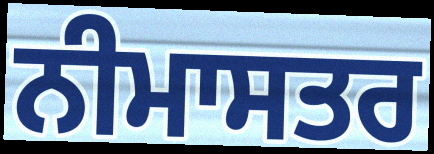
ਨੀਮਾਸਤਰ